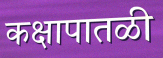
कक्षापातळी